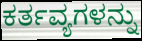
ಕರ್ತವ್ಯಗಳನ್ನು